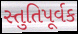
સ્તુતિપૂર્વક